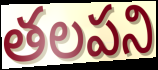
తలపని